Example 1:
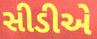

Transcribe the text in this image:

સીડીએ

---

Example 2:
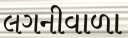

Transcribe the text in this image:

લગનીવાળા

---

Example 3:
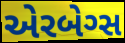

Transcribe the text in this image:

એરબેગ્સ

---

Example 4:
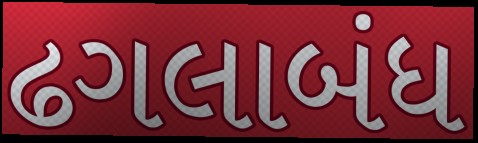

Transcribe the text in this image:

ઢગલાબંધ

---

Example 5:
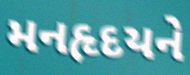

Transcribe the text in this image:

મનહૃદયને